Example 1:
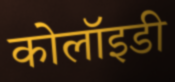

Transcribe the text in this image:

कोलॉइडी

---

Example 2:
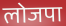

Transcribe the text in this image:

लोजपा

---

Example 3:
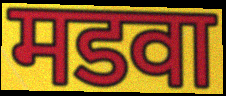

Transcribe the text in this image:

मडवा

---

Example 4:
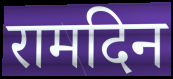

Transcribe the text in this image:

रामदिन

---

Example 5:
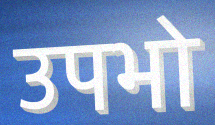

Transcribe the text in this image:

उपभो